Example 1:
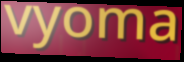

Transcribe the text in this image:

vyoma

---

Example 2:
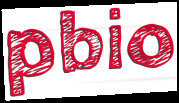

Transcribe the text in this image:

pbio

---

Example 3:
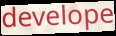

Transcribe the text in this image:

develope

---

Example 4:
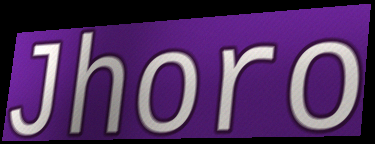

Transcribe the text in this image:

Jhoro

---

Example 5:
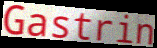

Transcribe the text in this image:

Gastrin